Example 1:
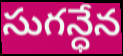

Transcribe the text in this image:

సుగన్ధేన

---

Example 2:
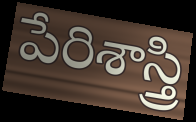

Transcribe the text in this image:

పేరిశాస్త్రి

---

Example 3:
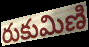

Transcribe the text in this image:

రుకుమిణి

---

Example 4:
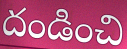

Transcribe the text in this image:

దండించి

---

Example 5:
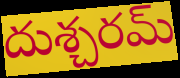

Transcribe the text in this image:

దుశ్చరమ్